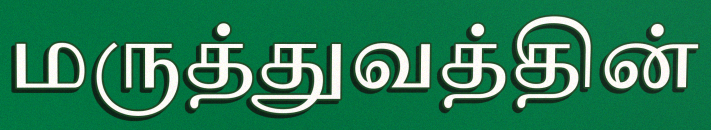
மருத்துவத்தின்